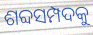
ଶବ୍ଦସମ୍ପଦକୁ